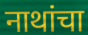
नाथांचा